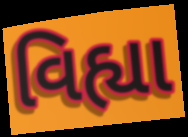
વિહ્યા